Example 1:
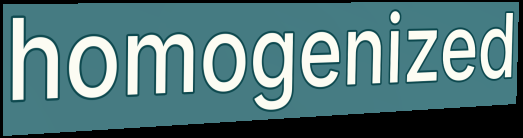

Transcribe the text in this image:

homogenized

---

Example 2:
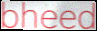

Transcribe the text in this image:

bheed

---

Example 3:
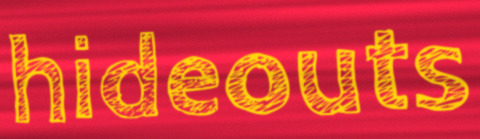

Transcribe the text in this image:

hideouts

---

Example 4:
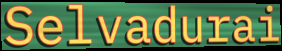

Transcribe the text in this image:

Selvadurai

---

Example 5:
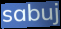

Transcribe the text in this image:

sabuj